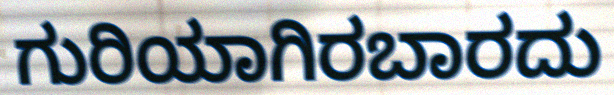
ಗುರಿಯಾಗಿರಬಾರದು